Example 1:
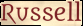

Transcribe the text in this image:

Russell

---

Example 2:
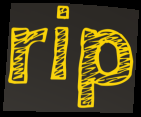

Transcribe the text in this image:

rip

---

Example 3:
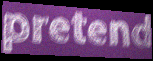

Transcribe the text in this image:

pretend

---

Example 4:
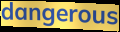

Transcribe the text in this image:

dangerous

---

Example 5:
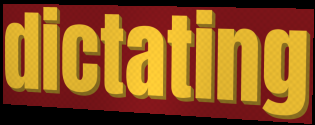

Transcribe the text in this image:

dictating